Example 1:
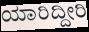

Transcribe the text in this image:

ಯಾರಿದ್ದೀರಿ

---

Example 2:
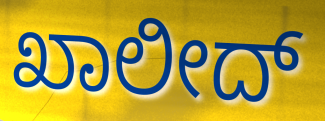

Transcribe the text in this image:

ಖಾಲೀದ್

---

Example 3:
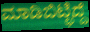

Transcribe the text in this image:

ಮಾಡಿಬಿಟ್ಟಿದ್ದೆ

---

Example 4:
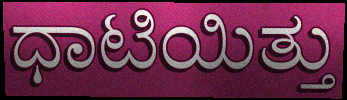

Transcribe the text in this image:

ಧಾಟಿಯಿತ್ತು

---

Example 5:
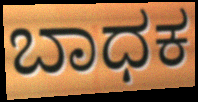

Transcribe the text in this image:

ಬಾಧಕ